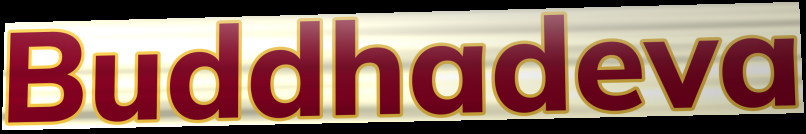
Buddhadeva